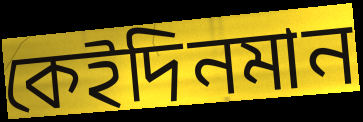
কেইদিনমান